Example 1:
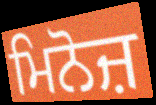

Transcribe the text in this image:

ਮਿਨੋਜ਼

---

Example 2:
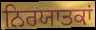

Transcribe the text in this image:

ਨਿਰਯਾਤਕਾਂ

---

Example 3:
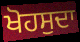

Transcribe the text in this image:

ਖੋਹਸੁਦਾ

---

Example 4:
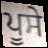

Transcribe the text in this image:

ਪੂਸੇ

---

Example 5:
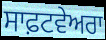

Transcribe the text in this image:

ਸਾਫ਼ਟਵੇਅਰਾ